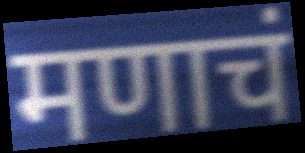
मणाचं